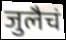
जुलैचं